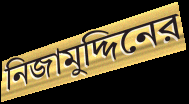
নিজামুদ্দিনের